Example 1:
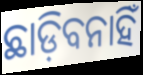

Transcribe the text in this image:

ଛାଡ଼ିବନାହିଁ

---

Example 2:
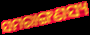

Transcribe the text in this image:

ସମରାଙ୍ଗଣସ୍ୟ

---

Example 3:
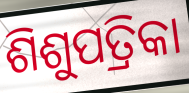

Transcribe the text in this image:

ଶିଶୁପତ୍ରିକା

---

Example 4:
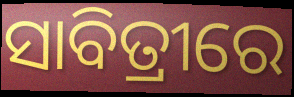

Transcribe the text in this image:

ସାବିତ୍ରୀରେ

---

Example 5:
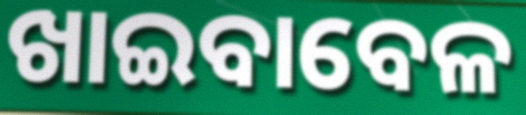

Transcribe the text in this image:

ଖାଇବାବେଳ